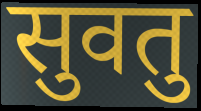
सुवतु